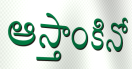
ఆస్తాంకినో